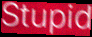
Stupid